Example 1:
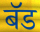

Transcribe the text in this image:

बॅड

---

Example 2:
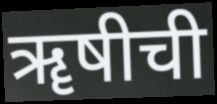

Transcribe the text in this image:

ॠषीची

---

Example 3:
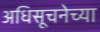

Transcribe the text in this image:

अधिसूचनेच्या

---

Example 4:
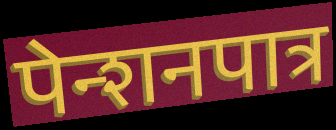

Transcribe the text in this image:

पेन्शनपात्र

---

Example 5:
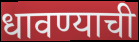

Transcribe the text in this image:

धावण्याची